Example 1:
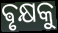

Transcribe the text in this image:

ଵୃକ୍ଷକୁ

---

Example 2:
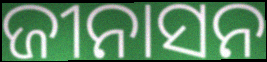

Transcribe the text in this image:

ଜୀନାସନ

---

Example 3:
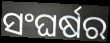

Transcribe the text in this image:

ସଂଘର୍ଷର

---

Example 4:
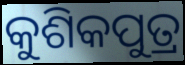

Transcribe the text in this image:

କୁଶିକପୁତ୍ର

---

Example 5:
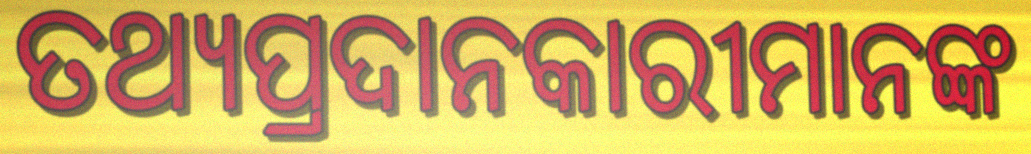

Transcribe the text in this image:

ତଥ୍ୟପ୍ରଦାନକାରୀମାନଙ୍କ